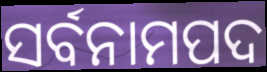
ସର୍ବନାମପଦ